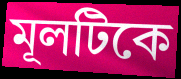
মূলটিকে